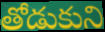
తోడుకుని